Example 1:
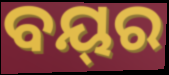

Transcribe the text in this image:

ବୟ୍‌ର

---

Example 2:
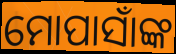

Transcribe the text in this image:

ମୋପାସାଁଙ୍କ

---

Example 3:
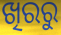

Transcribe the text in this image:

ଖିରରୁ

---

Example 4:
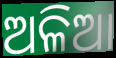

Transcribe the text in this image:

ଅଳିଆ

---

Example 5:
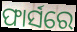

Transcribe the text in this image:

ଫାର୍ସରେ